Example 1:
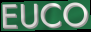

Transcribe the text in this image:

EUCO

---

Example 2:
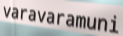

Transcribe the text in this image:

varavaramuni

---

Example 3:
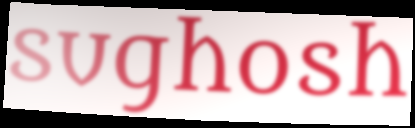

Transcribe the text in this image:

sughosh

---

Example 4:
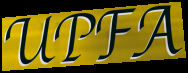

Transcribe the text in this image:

UPFA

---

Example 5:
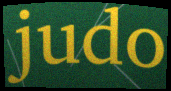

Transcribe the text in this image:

judo